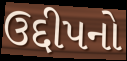
ઉદ્દીપનો